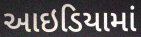
આઇડિયામાં